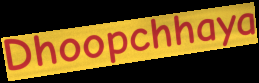
Dhoopchhaya